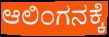
ಆಲಿಂಗನಕ್ಕೆ